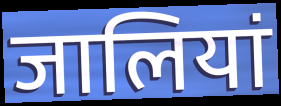
जालियां